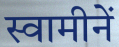
स्वामीनें